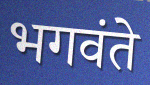
भगवंते